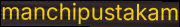
manchipustakam